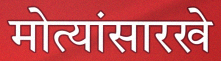
मोत्यांसारखे